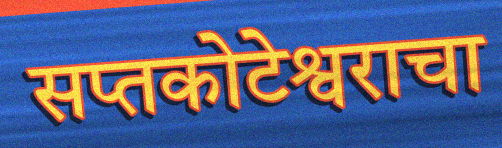
सप्तकोटेश्वराचा